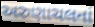
અરુણાચલનાં